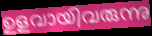
ഉളവായിവരുന്നു